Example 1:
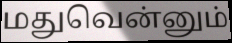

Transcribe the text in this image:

மதுவென்னும்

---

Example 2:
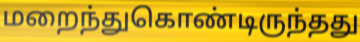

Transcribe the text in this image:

மறைந்துகொண்டிருந்தது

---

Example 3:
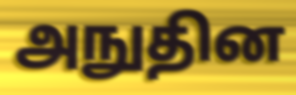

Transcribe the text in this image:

அநுதின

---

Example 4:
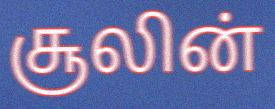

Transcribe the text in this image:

சூலின்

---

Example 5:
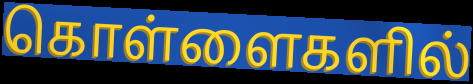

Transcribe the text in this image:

கொள்ளைகளில்